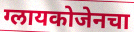
ग्लायकोजेनचा